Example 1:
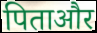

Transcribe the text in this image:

पिताऔर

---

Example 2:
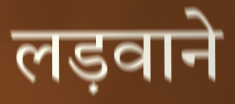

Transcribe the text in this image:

लड़वाने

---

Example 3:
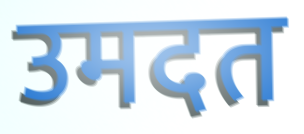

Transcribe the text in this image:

उमदत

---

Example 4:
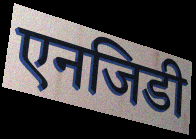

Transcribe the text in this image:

एनजिडी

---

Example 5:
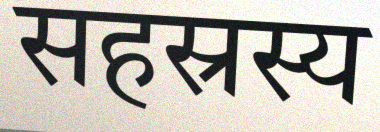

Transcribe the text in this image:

सहस्रस्य